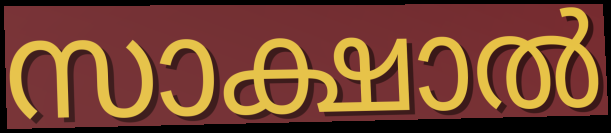
സാക്ഷാൽ